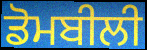
ਡੋਮਬੀਲੀ